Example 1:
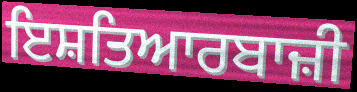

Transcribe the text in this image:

ਇਸ਼ਤਿਆਰਬਾਜ਼ੀ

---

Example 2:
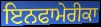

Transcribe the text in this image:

ਇਨਫਾਮੇਰੀਕਾ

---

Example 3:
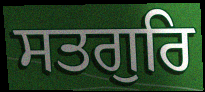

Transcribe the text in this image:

ਸਤਗੁਰਿ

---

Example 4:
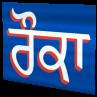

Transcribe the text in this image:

ਰੌਕਾ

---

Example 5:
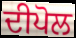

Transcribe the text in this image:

ਦੀਪੋਲ